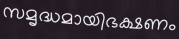
സമൃദ്ധമായിഭക്ഷണം